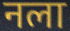
नला